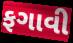
ફગાવી